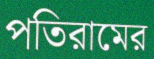
পতিরামের